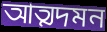
আত্মদমন